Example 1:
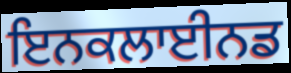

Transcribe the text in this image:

ਇਨਕਲਾਈਨਡ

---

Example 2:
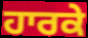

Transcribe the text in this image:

ਹਾਰਕੇ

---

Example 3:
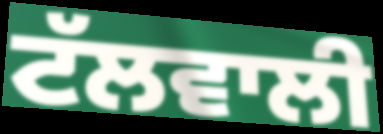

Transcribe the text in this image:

ਟੱਲਵਾਲੀ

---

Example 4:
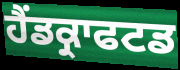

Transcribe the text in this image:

ਹੈਂਡਕ੍ਰਾਫਟਡ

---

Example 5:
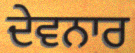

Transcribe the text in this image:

ਦੇਵਨਾਰ